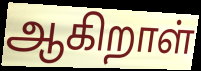
ஆகிறாள்